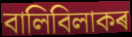
বালিবিলাকৰ